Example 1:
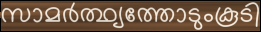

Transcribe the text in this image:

സാമർത്ഥ്യത്തോടുംകൂടി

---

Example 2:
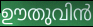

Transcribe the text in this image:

ഊതുവിൻ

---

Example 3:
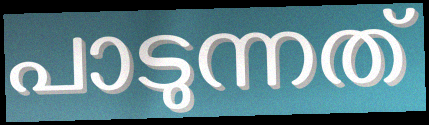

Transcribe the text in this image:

പാടുന്നത്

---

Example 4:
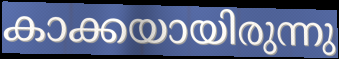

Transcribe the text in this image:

കാക്കയായിരുന്നു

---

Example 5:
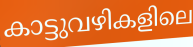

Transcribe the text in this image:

കാട്ടുവഴികളിലെ